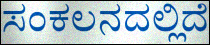
ಸಂಕಲನದಲ್ಲಿದೆ